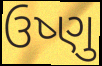
ઉષ્ણુ